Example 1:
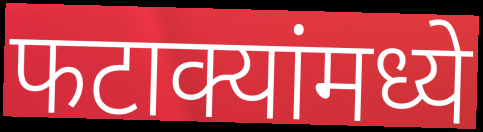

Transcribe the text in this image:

फटाक्यांमध्ये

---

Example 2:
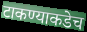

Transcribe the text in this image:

टाकण्याकडेच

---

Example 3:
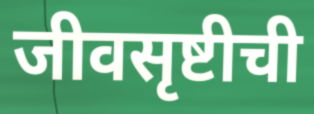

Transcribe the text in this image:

जीवसृष्टीची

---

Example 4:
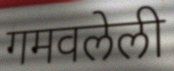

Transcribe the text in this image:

गमवलेली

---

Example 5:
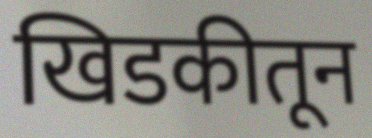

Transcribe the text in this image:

खिडकीतून